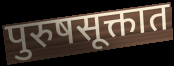
पुरुषसूक्तात